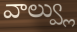
వాల్వ్లు